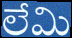
లేమి